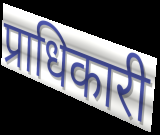
प्राधिकारी